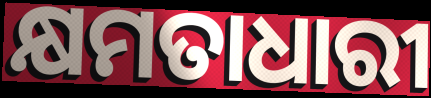
କ୍ଷମତାଧାରୀ